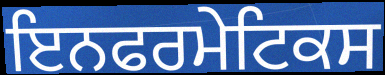
ਇਨਫਰਮੇਟਿਕਸ